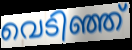
വെടിഞ്ഞ്